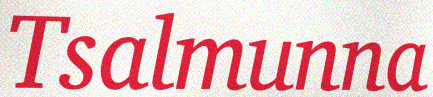
Tsalmunna